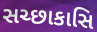
સચ્છાકાસિ